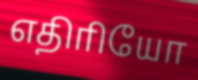
எதிரியோ